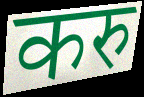
करु